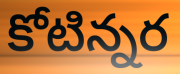
కోటిన్నర